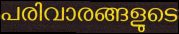
പരിവാരങ്ങളുടെ